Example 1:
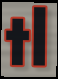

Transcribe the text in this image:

tl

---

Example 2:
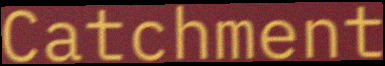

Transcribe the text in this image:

Catchment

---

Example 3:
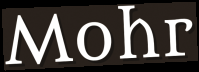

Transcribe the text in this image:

Mohr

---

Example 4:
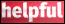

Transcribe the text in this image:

helpful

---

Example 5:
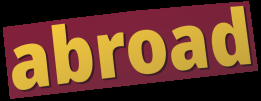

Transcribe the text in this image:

abroad